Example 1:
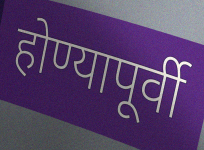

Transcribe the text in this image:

होण्यापूर्वी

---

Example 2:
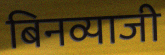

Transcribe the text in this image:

बिनव्याजी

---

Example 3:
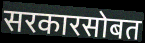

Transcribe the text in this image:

सरकारसोबत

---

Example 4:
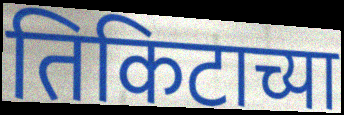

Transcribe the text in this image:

तिकिटाच्या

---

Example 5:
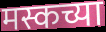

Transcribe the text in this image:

मस्कच्या